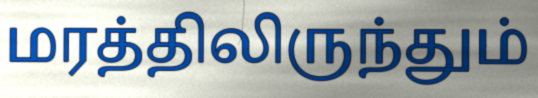
மரத்திலிருந்தும்